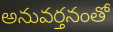
అనువర్తనంతో